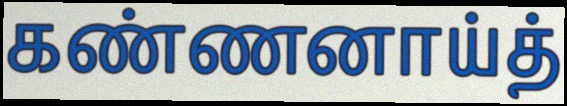
கண்ணனாய்த்